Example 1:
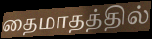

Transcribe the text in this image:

தைமாதத்தில்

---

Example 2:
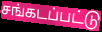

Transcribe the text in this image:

சங்கடப்பட்டு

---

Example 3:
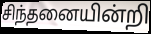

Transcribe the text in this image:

சிந்தனையின்றி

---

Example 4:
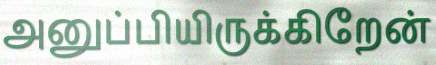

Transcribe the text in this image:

அனுப்பியிருக்கிறேன்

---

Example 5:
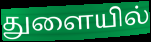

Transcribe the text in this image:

துளையில்